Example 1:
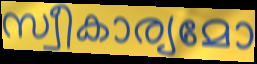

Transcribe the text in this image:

സ്വീകാര്യമോ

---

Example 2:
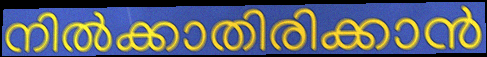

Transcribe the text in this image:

നിൽക്കാതിരിക്കാൻ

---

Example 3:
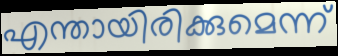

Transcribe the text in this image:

എന്തായിരിക്കുമെന്ന്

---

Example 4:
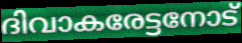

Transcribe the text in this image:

ദിവാകരേട്ടനോട്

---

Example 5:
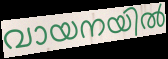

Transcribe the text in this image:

വായനയിൽ